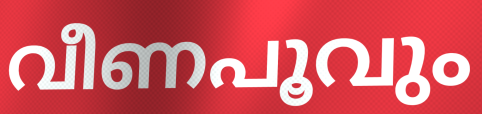
വീണപൂവും